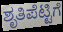
ಶೃತಿಪೆಟ್ಟಿಗೆ